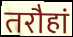
तरौहां